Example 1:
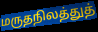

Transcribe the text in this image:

மருதநிலத்துத்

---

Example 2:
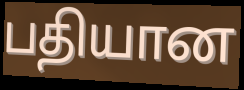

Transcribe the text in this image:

பதியான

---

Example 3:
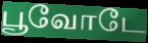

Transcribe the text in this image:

பூவோடே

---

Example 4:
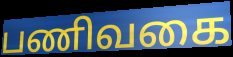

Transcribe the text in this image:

பணிவகை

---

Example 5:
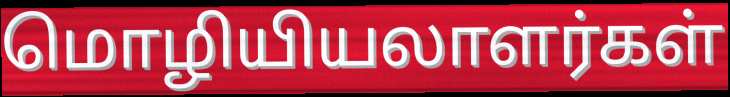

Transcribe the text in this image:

மொழியியலாளர்கள்